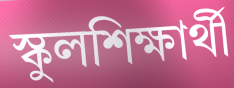
স্কুলশিক্ষার্থী